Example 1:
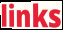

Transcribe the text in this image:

links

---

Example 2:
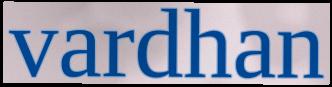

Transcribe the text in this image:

vardhan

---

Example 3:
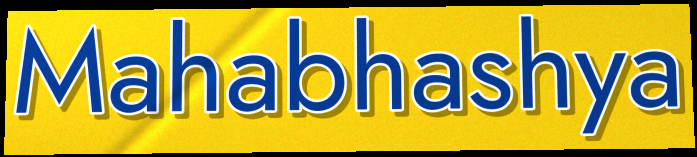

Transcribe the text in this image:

Mahabhashya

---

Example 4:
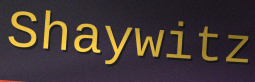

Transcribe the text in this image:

Shaywitz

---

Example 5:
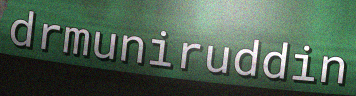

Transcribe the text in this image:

drmuniruddin